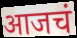
आजचं